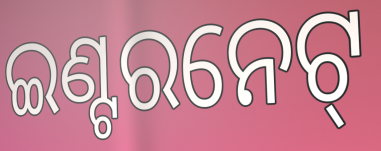
ଇଣ୍ଟରନେଟ୍